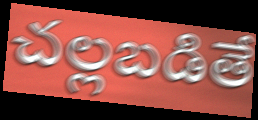
చల్లబడితే